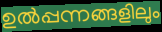
ഉൽപ്പന്നങ്ങളിലും